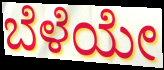
ಬೆಳೆಯೇ